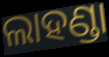
ଲାହଣ୍ଡା